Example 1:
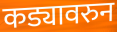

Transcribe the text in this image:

कड्यावरुन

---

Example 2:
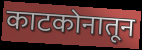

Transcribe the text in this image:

काटकोनातून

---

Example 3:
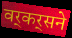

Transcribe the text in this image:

वर्कर्सने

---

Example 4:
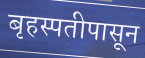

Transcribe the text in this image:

बृहस्पतीपासून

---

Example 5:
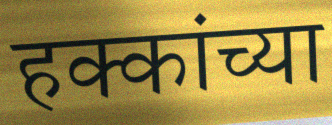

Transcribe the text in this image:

हक्कांच्या